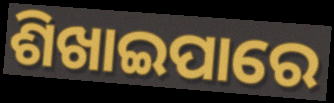
ଶିଖାଇପାରେ